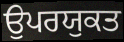
ਉਪਰਯੁਕਤ